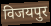
विजयपुर